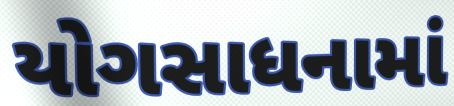
યોગસાધનામાં